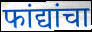
फांद्यांचा